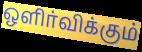
ஒளிர்விக்கும்